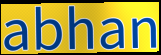
abhan